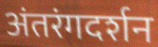
अंतरंगदर्शन